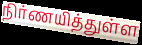
நிர்ணயித்துள்ள